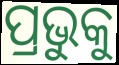
ପ୍ରଭୁକୁ